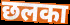
छलका